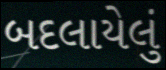
બદલાયેલું